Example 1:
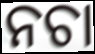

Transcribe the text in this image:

ନଚା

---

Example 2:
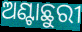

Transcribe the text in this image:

ଅଣ୍ଟାଛୁରୀ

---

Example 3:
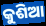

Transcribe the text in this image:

କୁଶିଆ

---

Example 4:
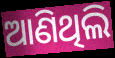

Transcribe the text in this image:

ଆଣିଥିଲି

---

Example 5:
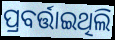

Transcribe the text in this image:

ପ୍ରବର୍ତ୍ତାଇଥିଲି